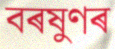
বৰষুণৰ